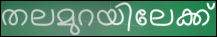
തലമുറയിലേക്ക്